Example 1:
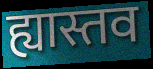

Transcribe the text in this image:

ह्यास्तव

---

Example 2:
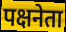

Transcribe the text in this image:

पक्षनेता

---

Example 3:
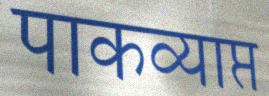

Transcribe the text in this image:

पाकव्याप्त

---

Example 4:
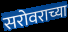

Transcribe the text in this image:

सरोवराच्या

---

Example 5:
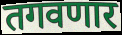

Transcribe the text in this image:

तगवणार